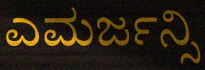
ಎಮರ್ಜನ್ಸಿ